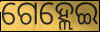
ଗେହ୍ଲେଇ